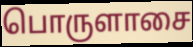
பொருளாசை